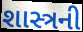
શાસ્ત્રની